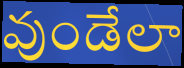
వుండేలా